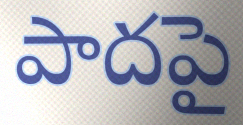
పాదపై